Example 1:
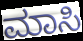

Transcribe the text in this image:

ಮಾಸಿ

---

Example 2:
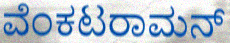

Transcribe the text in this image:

ವೆಂಕಟರಾಮನ್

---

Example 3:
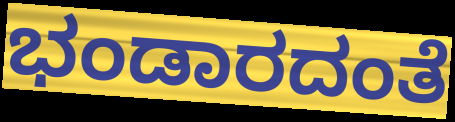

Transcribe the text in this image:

ಭಂಡಾರದಂತೆ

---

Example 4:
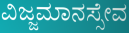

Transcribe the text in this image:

ವಿಜ್ಜಮಾನಸ್ಸೇವ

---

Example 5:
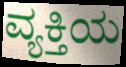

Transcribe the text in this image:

ವ್ಯಕ್ತಿಯ